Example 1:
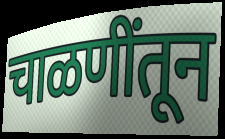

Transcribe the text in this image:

चाळणींतून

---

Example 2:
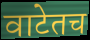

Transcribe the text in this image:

वाटेतच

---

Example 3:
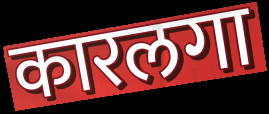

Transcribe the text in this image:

कारलगा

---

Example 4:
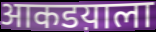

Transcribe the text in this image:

आकडय़ाला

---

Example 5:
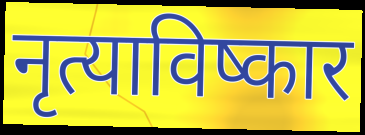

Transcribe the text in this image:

नृत्याविष्कार